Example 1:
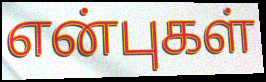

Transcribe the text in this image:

என்புகள்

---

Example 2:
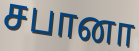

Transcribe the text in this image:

சபானா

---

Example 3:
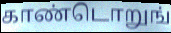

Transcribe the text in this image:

காண்டொறுங்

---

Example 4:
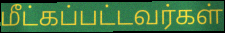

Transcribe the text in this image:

மீட்கப்பட்டவர்கள்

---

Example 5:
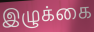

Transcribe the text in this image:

இழுக்கை